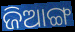
ଜିଆଙ୍ଗ